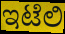
ಇಟೆಲಿ